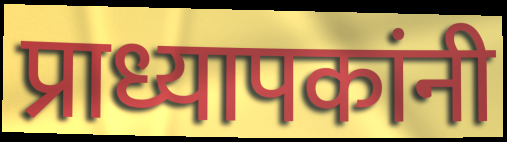
प्राध्यापकांनी